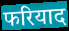
फरियाद